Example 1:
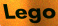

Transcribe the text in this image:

Lego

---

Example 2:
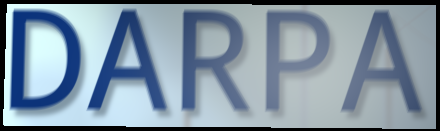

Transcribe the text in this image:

DARPA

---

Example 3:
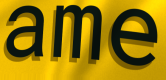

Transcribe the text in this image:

ame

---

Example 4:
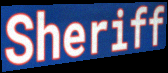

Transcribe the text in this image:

Sheriff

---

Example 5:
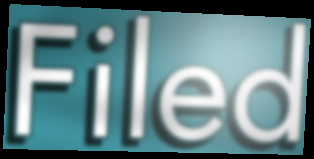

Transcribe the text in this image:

Filed